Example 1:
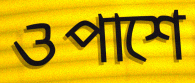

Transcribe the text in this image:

ওপাশে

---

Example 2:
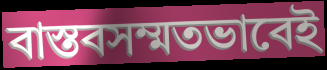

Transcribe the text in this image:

বাস্তবসম্মতভাবেই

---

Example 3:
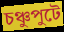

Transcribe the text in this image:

চঞ্চুপুটে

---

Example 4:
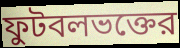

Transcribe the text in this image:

ফুটবলভক্তের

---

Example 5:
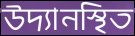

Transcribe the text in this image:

উদ্যানস্থিত